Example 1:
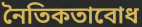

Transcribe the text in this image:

নৈতিকতাবোধ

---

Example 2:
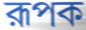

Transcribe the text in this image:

রূপক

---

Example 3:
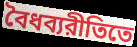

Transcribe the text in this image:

বৈধব্যরীতিতে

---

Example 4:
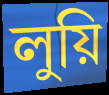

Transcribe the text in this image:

লুয়ি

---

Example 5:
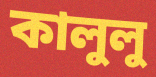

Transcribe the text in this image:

কালুলু